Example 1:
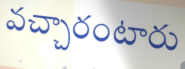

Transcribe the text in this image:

వచ్చారంటారు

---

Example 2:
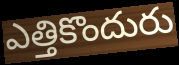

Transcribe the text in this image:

ఎత్తికొందురు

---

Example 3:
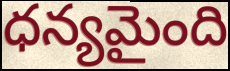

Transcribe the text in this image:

ధన్యమైంది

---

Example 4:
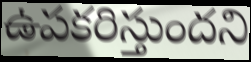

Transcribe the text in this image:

ఉపకరిస్తుందని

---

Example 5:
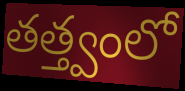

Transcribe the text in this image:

తత్త్వంలో